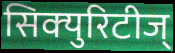
सिक्युरिटीज्